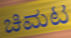
ಚಿಮಟ